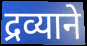
द्रव्याने